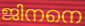
ജിനനെ